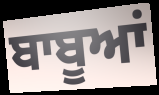
ਬਾਬੂਆਂ